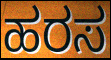
ಹರಸ